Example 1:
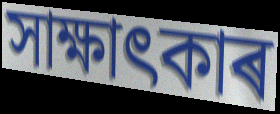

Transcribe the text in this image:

সাক্ষাৎকাৰ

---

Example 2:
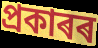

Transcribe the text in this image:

প্ৰকাৰৰ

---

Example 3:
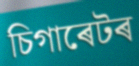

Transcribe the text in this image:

চিগাৰেটৰ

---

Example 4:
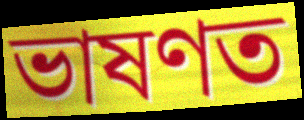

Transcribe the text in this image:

ভাষণত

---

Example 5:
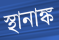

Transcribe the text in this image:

স্থানাঙ্ক